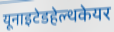
यूनाइटेडहेल्थकेयर